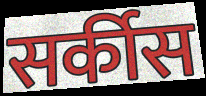
सर्कीस